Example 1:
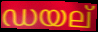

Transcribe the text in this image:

ഡയല്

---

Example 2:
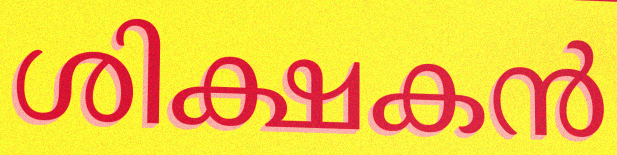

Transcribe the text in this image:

ശിക്ഷകൻ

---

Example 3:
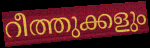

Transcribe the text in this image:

റീത്തുക്കളും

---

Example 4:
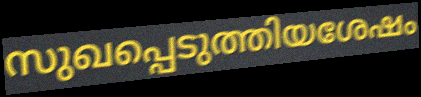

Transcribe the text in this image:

സുഖപ്പെടുത്തിയശേഷം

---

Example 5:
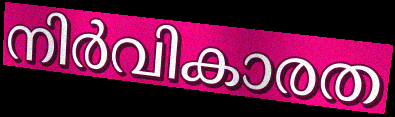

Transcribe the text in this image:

നിർവികാരത